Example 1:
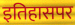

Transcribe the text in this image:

इतिहासपर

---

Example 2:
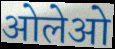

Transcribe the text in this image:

ओलेओ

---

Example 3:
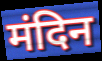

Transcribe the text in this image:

मंदिन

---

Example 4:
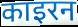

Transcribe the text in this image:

काइरन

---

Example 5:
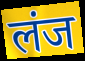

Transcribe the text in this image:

लंज